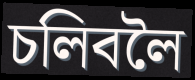
চলিবলৈ